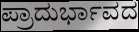
ಪ್ರಾದುರ್ಭಾವದ